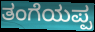
ತಂಗೆಯಪ್ಪ